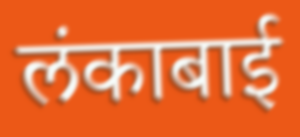
लंकाबाई